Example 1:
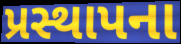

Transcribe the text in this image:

પ્રસ્થાપના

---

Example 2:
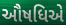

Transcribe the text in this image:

ઔષધિએ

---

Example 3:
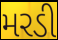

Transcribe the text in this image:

મરડી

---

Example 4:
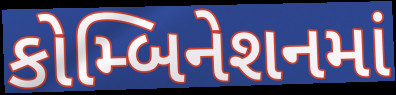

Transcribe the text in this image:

કોમ્બિનેશનમાં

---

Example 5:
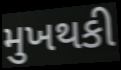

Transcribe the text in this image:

મુખથકી